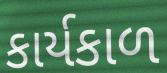
કાર્યકાળ